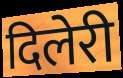
दिलेरी